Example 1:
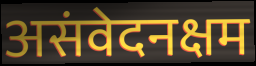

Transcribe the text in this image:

असंवेदनक्षम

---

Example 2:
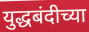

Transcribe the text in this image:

युद्धबंदीच्या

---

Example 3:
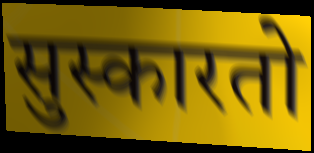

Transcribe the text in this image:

सुस्कारतो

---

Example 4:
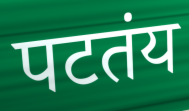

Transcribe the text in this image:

पटतंय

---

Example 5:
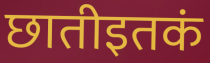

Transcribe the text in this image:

छातीइतकं